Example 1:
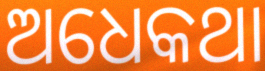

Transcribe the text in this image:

ଅଧେକଥା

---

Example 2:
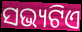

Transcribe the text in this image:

ସଭ୍ୟଟିଏ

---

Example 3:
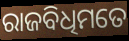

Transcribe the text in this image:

ରାଜବିଧିମତେ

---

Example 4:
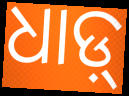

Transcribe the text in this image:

ଧାଡ଼୍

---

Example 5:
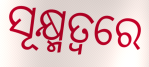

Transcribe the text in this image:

ସୂକ୍ଷ୍ମତ୍ୱରେ